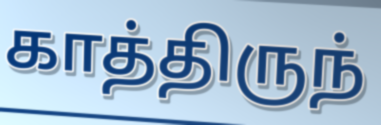
காத்திருந்